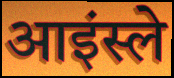
आइंस्ले